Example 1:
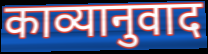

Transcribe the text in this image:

काव्यानुवाद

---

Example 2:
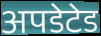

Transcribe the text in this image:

अपडेटेड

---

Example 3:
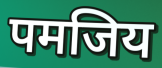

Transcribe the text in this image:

पमजिय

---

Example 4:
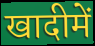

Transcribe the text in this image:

खादीमें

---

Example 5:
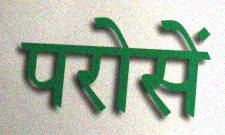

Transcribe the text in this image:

परोसें